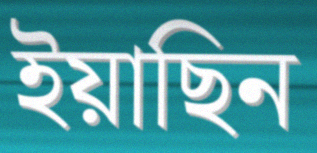
ইয়াছিন